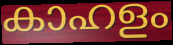
കാഹളം